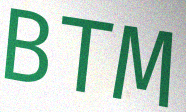
BTM